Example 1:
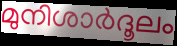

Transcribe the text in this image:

മുനിശാർദൂലം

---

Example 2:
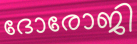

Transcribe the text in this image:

ദോരോജി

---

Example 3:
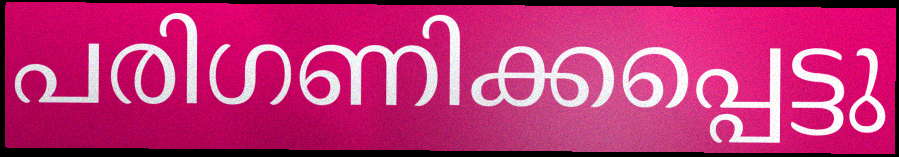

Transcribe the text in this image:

പരിഗണിക്കപ്പെട്ടു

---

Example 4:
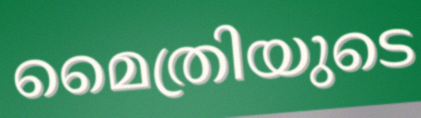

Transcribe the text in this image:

മൈത്രിയുടെ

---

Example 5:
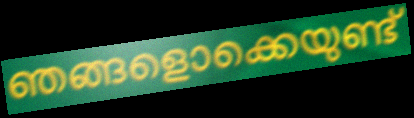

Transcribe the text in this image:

ഞങ്ങളൊക്കെയുണ്ട്